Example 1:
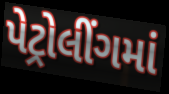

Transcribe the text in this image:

પેટ્રોલીંગમાં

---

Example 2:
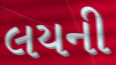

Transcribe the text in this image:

લયની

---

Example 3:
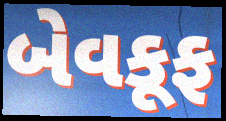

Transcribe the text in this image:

બેવકૂફ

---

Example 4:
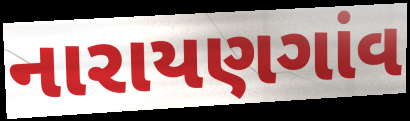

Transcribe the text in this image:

નારાયણગાંવ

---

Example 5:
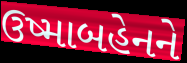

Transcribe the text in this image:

ઉષ્માબહેનને